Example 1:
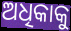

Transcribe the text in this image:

ଅଧିକାକୁ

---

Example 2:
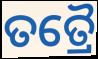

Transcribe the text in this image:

ତତ୍ରୈ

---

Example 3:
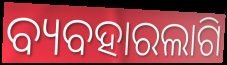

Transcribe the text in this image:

ବ୍ୟବହାରଲାଗି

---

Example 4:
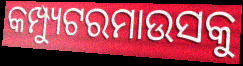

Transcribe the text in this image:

କମ୍ପ୍ୟୁଟରମାଉସକୁ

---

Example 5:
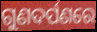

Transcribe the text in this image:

ଗୁଣଦର୍ପଣରେ